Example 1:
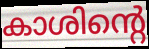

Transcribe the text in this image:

കാശിന്റെ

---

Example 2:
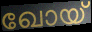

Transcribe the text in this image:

ഖോയ്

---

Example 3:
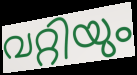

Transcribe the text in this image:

വറ്റിയും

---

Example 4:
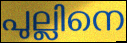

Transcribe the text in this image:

പുല്ലിനെ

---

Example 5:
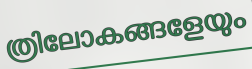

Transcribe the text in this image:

ത്രിലോകങ്ങളേയും